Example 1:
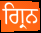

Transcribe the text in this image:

ਗ੍ਰਿਨ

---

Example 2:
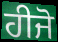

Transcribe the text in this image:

ਹੀਜੋ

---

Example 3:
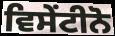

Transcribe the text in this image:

ਵਿਸੇਂਟੀਨੋ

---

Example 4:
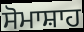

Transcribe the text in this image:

ਸੋਮਾਸ਼ਾਹ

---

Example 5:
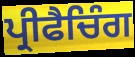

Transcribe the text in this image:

ਪ੍ਰੀਫੈਚਿੰਗ